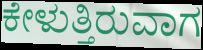
ಕೇಳುತ್ತಿರುವಾಗ